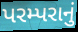
પરમ્પરાનું